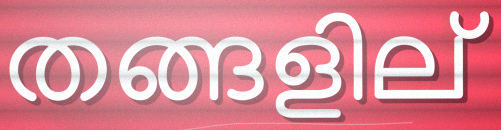
തങ്ങളില്